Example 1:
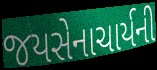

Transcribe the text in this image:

જયસેનાચાર્યની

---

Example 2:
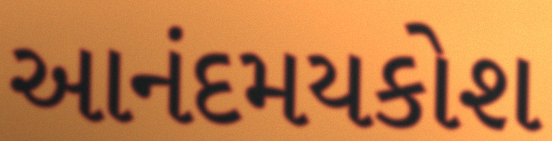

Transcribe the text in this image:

આનંદમયકોશ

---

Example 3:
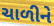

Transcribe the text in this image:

ચાળીને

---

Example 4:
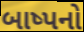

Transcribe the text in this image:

બાષ્પનો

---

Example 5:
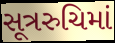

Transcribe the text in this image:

સૂત્રરુચિમાં